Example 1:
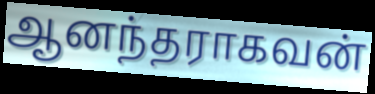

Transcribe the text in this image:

ஆனந்தராகவன்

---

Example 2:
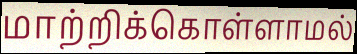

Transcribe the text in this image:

மாற்றிக்கொள்ளாமல்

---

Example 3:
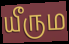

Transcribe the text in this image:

யீரும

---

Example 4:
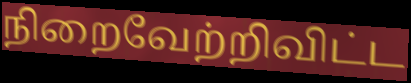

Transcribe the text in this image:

நிறைவேற்றிவிட்ட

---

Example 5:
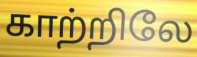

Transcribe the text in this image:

காற்றிலே